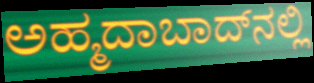
ಅಹ್ಮದಾಬಾದ್‍ನಲ್ಲಿ